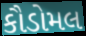
કૌડોમલ